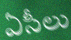
ఏసీలు